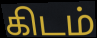
கிடம்